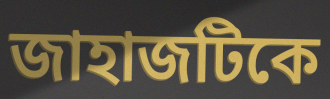
জাহাজটিকে